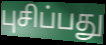
புசிப்பது